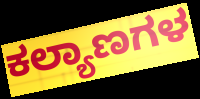
ಕಲ್ಯಾಣಗಳ